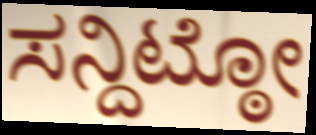
ಸನ್ದಿಟ್ಠೋ